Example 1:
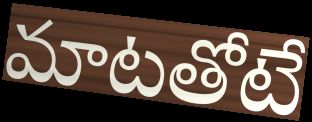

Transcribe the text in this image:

మాటతోటే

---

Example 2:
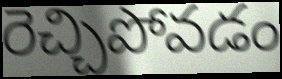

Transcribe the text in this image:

రెచ్చిపోవడం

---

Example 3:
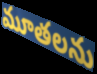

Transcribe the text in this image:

మూతలను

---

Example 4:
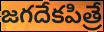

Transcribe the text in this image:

జగదేకపిత్రే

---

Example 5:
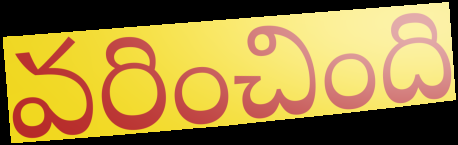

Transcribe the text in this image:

వరించింది